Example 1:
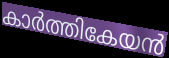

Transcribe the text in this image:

കാർത്തികേയൻ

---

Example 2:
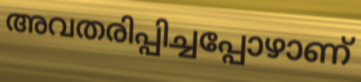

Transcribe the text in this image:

അവതരിപ്പിച്ചപ്പോഴാണ്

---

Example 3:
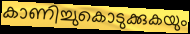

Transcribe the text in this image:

കാണിച്ചുകൊടുക്കുകയും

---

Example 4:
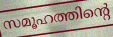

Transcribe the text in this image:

സമൂഹത്തിന്റെ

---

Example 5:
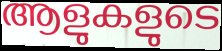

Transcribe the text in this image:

ആളുകളുടെ